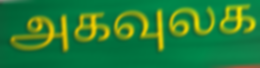
அகவுலக